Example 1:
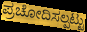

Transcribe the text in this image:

ಪ್ರಚೋದಿಸಲ್ಪಟ್ಟು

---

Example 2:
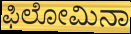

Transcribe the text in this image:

ಫಿಲೋಮಿನಾ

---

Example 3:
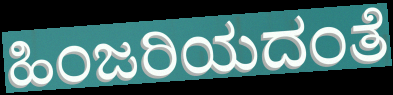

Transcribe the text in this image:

ಹಿಂಜರಿಯದಂತೆ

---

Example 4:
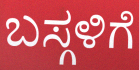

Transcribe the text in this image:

ಬಸ್ಗಳಿಗೆ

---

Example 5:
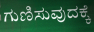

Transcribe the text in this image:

ಗುಣಿಸುವುದಕ್ಕೆ